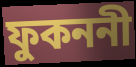
ফুকননী